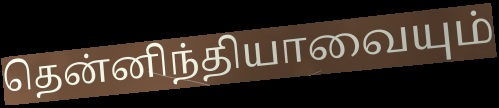
தென்னிந்தியாவையும்